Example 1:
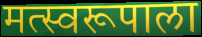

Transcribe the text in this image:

मत्स्वरूपाला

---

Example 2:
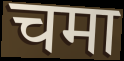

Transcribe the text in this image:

चमा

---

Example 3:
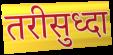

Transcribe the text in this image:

तरीसुध्दा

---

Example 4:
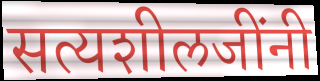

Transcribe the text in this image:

सत्यशीलजींनी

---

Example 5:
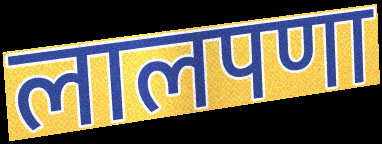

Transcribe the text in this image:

लालपणा